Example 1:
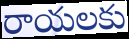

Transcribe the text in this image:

రాయలకు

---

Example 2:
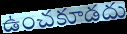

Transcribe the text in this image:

ఉంచకూడదు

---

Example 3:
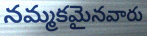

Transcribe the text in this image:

నమ్మకమైనవారు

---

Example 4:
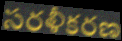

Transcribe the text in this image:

సరళీకరణ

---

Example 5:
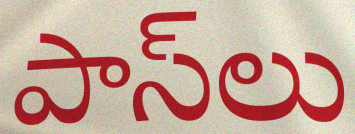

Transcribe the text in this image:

పాస్‌లు